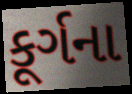
કૂર્ગના